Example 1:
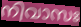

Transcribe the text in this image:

നിവാസഃ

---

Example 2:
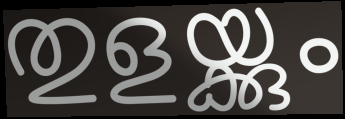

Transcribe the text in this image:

തുളയ്ക്കും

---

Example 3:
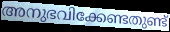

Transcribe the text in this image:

അനുഭവിക്കേണ്ടതുണ്ട്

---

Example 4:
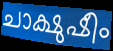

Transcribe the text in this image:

ചാക്ഷുഷീം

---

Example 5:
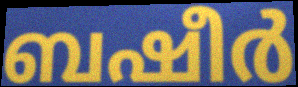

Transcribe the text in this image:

ബഷീർ